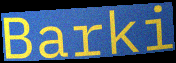
Barki